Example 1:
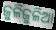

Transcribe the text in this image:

ଜୁଳିଜୁଳିଆ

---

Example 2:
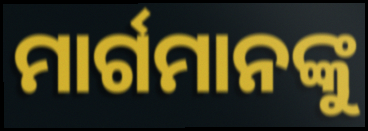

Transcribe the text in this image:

ମାର୍ଗମାନଙ୍କୁ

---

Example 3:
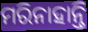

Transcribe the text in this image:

ମରିନାହାନ୍ତି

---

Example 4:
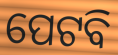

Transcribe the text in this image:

ପେଟବି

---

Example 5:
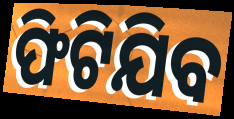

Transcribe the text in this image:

ଫିଟିଯିବ